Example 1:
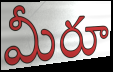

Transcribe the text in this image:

మీరూ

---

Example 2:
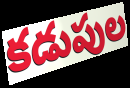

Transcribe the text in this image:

కడుపుల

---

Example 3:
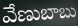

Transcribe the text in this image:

వేణుబాబు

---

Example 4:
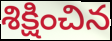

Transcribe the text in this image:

శిక్షించిన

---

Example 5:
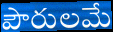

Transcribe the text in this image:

పౌరులమే